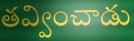
తవ్వించాడు